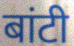
बांटी